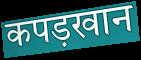
कपड़खान